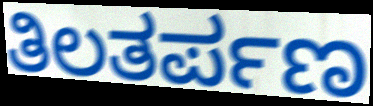
ತಿಲತರ್ಪಣ